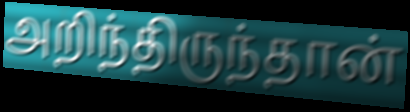
அறிந்திருந்தான்